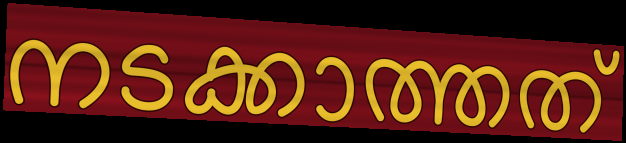
നടക്കാത്തത്